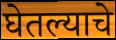
घेतल्याचे